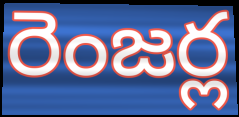
రెంజర్ల